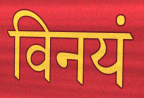
विनयं